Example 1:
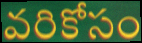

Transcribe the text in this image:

వరికోసం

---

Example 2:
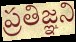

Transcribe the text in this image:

ప్రతిజ్ఞని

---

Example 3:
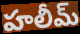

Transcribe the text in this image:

హలీమ్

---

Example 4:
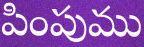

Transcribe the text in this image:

పింపుము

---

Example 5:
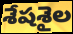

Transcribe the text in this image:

శేషశైల